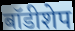
बॉडीशेप